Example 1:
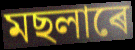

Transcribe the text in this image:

মছলাৰে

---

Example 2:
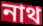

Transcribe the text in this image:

নাথ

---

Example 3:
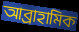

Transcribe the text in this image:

আব্ৰাহামিক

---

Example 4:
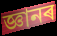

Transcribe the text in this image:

জ্ঞানৰ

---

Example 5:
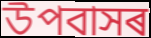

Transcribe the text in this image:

উপবাসৰ